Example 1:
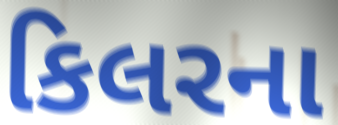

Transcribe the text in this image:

કિલરના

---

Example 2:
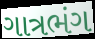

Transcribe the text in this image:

ગાત્રભંગ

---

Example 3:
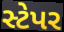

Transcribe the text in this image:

સ્ટેપર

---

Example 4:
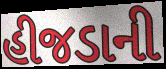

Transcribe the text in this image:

હીજડાની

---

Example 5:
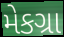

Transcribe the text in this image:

મેકગ્રા